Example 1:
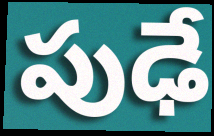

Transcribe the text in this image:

పుఢే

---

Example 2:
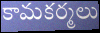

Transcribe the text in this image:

కామకర్మలు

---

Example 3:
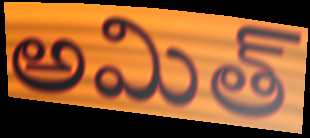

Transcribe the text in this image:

అమిత్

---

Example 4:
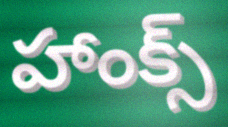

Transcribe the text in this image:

హాంక్స్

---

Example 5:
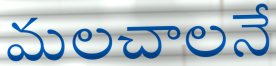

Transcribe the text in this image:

మలచాలనే